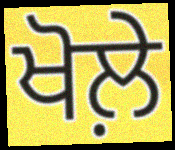
ਖੋਲ਼ੇ